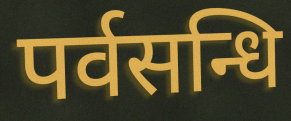
पर्वसन्धि